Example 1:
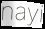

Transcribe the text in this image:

nayi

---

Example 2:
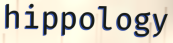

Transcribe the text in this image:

hippology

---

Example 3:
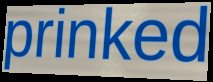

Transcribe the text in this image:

prinked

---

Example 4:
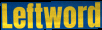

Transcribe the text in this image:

Leftword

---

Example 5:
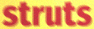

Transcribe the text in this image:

struts